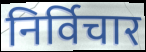
निर्विचार